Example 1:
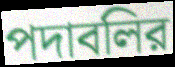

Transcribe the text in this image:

পদাবলির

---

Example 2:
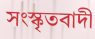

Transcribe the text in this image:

সংস্কৃতবাদী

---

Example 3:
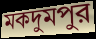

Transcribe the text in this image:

মকদুমপুর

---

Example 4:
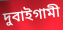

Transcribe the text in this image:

দুবাইগামী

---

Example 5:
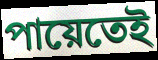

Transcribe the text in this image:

পায়েতেই